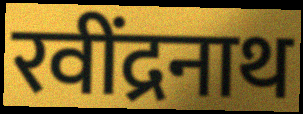
रवींद्रनाथ